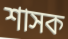
শাসক